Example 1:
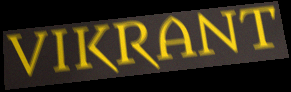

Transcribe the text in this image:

VIKRANT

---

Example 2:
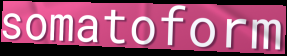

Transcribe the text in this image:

somatoform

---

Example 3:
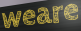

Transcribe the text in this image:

weare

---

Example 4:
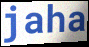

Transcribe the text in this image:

jaha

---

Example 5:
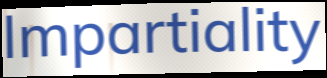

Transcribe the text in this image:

Impartiality